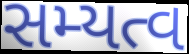
સમ્યત્વ